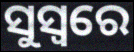
ସୁସ୍ୱରେ